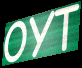
OYT